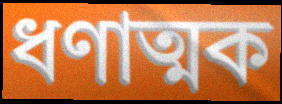
ধণাত্মক